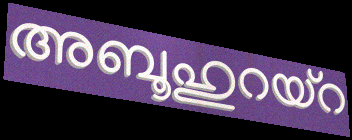
അബൂഹുറയ്റ